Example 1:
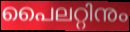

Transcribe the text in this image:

പൈലറ്റിനും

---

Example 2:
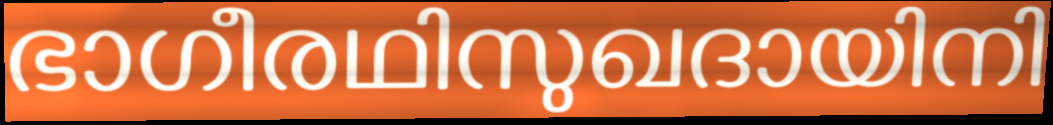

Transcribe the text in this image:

ഭാഗീരഥിസുഖദായിനി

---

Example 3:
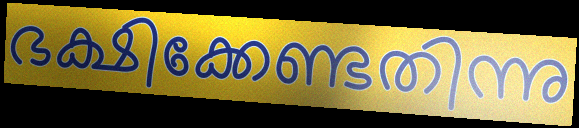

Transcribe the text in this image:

ഭക്ഷിക്കേണ്ടതിന്നു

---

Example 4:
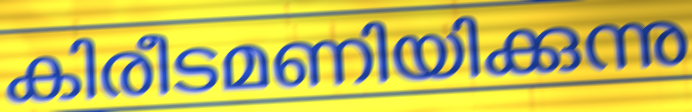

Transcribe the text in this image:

കിരീടമണിയിക്കുന്നു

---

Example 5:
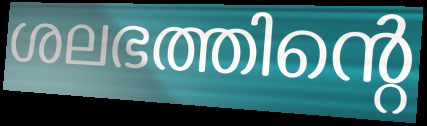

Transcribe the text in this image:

ശലഭത്തിന്റെ